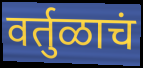
वर्तुळाचं